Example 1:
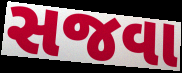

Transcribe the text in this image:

સજવા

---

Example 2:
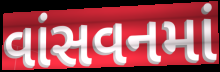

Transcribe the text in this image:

વાંસવનમાં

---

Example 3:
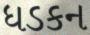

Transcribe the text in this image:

ધડકન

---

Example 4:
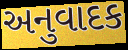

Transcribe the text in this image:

અનુવાદક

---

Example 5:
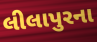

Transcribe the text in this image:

લીલાપુરના